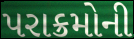
પરાક્રમોની